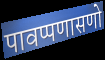
पावप्पणासणो